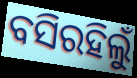
ବସିରହିଲୁଁ